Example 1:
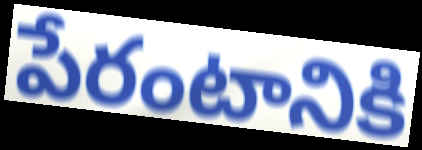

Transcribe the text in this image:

పేరంటానికి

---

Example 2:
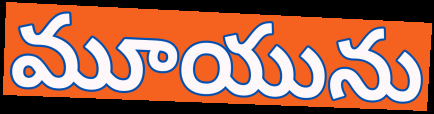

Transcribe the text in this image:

మూయును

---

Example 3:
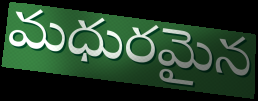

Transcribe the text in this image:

మధురమైన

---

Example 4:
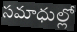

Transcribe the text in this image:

సమాధుల్లో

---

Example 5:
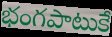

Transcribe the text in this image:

భంగపాటుకే